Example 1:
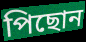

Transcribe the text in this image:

পিছোন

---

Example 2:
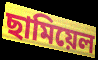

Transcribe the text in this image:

ছামিয়েল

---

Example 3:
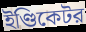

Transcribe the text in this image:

ইণ্ডিকেটর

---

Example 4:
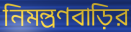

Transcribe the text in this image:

নিমন্ত্রণবাড়ির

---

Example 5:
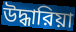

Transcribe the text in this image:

উদ্ধারিয়া